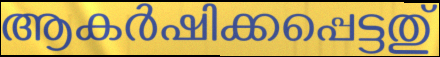
ആകർഷിക്കപ്പെട്ടതു്